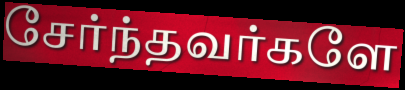
சேர்ந்தவர்களே